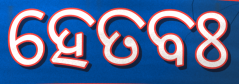
ହେତବଃ